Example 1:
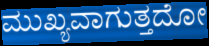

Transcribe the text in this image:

ಮುಖ್ಯವಾಗುತ್ತದೋ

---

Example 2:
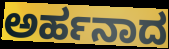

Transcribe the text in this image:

ಅರ್ಹನಾದ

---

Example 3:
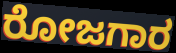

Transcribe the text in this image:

ರೋಜಗಾರ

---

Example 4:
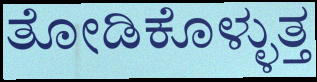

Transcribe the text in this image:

ತೋಡಿಕೊಳ್ಳುತ್ತ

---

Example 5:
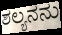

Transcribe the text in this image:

ಶಲ್ಯನನು